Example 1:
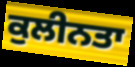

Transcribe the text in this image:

ਕੁਲੀਨਤਾ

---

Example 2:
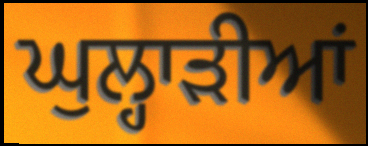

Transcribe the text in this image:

ਘੁਲ੍ਹਾੜੀਆਂ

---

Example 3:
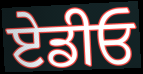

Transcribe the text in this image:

ਏਡੀਓ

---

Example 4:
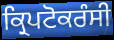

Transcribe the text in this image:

ਕ੍ਰਿਪਟੋਕਰੰਸੀ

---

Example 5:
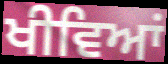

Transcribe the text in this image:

ਖੀਵਿਆਂ